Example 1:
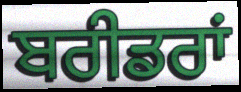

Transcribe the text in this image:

ਬਰੀਡਰਾਂ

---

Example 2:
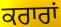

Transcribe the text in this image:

ਕਰਾਰਾਂ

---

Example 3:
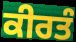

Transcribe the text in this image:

ਕੀਰਤੰ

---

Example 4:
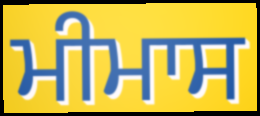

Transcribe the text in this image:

ਮੀਮਾਸ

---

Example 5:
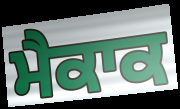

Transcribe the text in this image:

ਮੈਕਾਕ